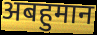
अबहुमान